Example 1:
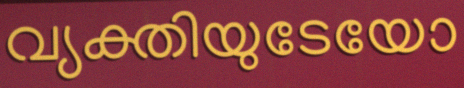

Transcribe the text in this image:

വ്യക്തിയുടേയോ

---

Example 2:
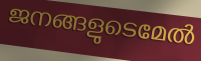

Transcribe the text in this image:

ജനങ്ങളുടെമേൽ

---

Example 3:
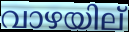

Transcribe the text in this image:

വാഴയില്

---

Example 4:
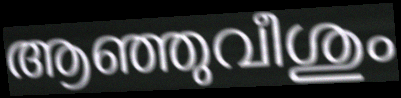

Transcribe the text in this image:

ആഞ്ഞുവീശും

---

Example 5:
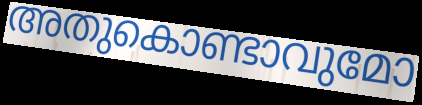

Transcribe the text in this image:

അതുകൊണ്ടാവുമോ